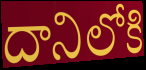
దానిలోకి